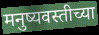
मनुष्यवस्तीच्या